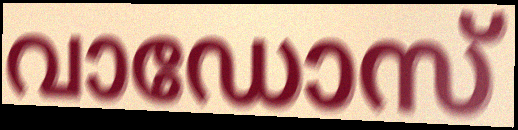
വാഡോസ്